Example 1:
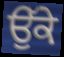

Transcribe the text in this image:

ਉੱਕੇ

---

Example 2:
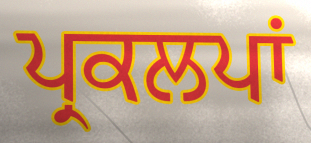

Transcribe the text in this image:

ਪ੍ਰਕਲਪਾਂ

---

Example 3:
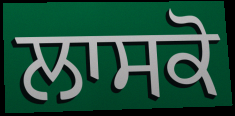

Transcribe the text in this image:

ਲਾਸਕੋ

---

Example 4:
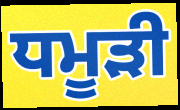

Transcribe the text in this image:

ਧਮੂੜੀ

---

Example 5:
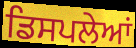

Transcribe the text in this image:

ਡਿਸਪਲੇਆਂ